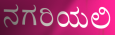
ನಗರಿಯಲಿ